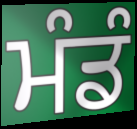
ਮੰਡੰ